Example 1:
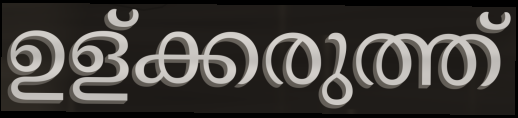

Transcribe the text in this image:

ഉള്ക്കരുത്ത്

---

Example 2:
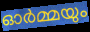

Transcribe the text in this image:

ഓർമ്മയും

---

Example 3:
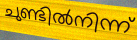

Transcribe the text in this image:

ചുണ്ടിൽനിന്ന്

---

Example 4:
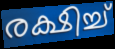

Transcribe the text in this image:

രക്ഷിച്ച്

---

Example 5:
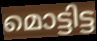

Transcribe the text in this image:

മൊട്ടിട്ട